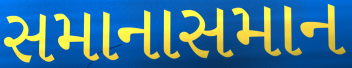
સમાનાસમાન